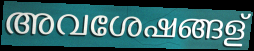
അവശേഷങ്ങള്